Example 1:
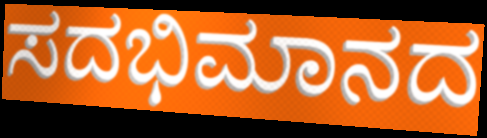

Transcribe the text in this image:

ಸದಭಿಮಾನದ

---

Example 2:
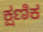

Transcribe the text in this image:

ಕ್ಷಣಿಕ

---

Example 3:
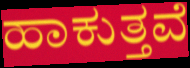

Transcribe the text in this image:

ಹಾಕುತ್ತವೆ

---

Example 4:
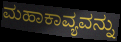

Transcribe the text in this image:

ಮಹಾಕಾವ್ಯವನ್ನು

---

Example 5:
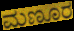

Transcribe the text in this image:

ಮಣೂರ